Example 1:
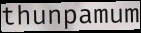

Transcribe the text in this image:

thunpamum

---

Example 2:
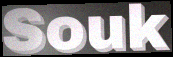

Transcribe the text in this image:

Souk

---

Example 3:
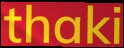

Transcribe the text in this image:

thaki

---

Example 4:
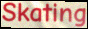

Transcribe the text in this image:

Skating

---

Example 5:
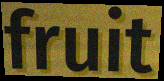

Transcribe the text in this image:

fruit